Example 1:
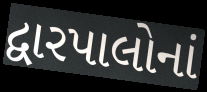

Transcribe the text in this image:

દ્વારપાલોનાં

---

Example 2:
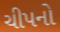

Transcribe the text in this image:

ચીપનો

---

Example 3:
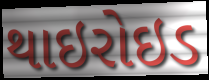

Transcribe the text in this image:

થાઇરોઇડ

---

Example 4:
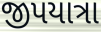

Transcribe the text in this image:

જીપયાત્રા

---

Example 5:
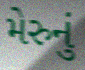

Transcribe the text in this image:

મેરુનું